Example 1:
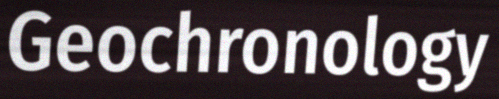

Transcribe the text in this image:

Geochronology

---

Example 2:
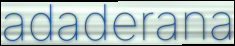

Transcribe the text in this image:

adaderana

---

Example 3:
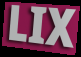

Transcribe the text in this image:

LIX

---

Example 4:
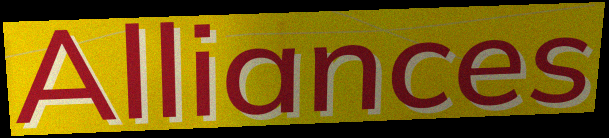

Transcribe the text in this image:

Alliances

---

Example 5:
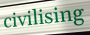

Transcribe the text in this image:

civilising